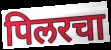
पिलरचा